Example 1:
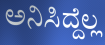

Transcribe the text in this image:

ಅನಿಸಿದ್ದೆಲ್ಲ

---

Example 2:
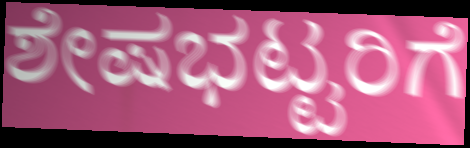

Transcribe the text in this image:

ಶೇಷಭಟ್ಟರಿಗೆ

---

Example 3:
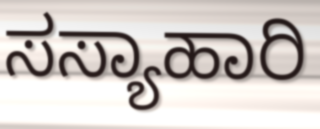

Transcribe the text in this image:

ಸಸ್ಯಾಹಾರಿ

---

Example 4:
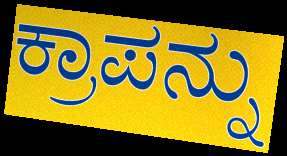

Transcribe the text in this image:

ಕ್ರಾಪನ್ನು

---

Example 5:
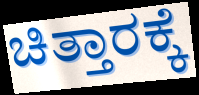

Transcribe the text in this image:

ಚಿತ್ತಾರಕ್ಕೆ